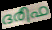
ദരീഫ